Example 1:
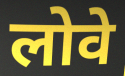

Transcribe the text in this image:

लोवे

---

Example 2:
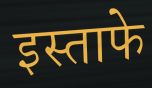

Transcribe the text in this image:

इस्ताफे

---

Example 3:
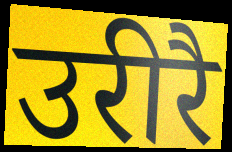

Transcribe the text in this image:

उरीरै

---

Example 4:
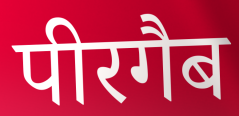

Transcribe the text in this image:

पीरगैब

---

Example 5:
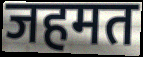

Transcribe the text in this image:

जहमत